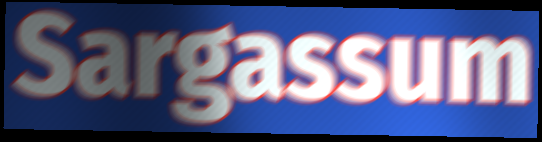
Sargassum